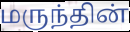
மருந்தின்